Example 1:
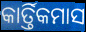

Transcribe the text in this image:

କାର୍ତ୍ତିକମାସ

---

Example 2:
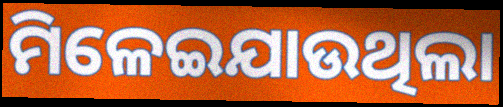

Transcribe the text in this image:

ମିଳେଇଯାଉଥିଲା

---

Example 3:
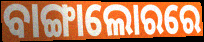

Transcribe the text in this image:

ବାଙ୍ଗାଲୋରରେ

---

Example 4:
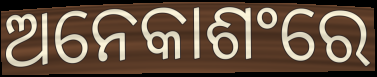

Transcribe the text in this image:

ଅନେକାଶଂରେ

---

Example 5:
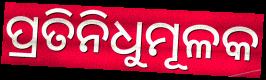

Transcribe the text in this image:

ପ୍ରତିନିଧୁମୂଳକ